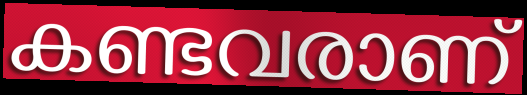
കണ്ടവരാണ്